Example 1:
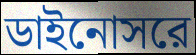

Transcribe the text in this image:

ডাইনোসরে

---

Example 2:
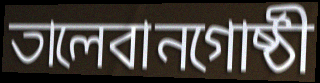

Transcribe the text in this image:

তালেবানগোষ্ঠী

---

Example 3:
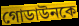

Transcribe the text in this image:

গোডাউনকে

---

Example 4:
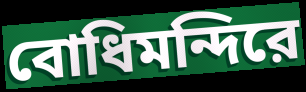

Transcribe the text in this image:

বোধিমন্দিরে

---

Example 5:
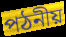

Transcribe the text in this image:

পঠনীয়